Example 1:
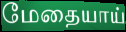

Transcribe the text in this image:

மேதையாய்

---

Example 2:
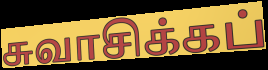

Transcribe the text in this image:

சுவாசிக்கப்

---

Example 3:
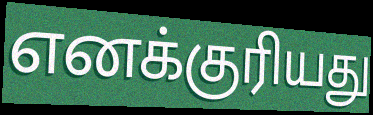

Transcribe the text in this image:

எனக்குரியது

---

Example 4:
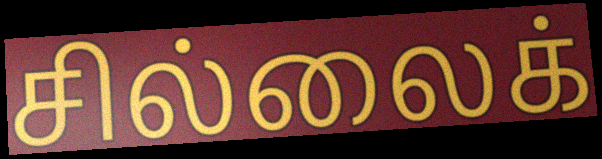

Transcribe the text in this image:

சில்லைக்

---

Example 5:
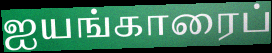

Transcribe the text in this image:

ஐயங்காரைப்